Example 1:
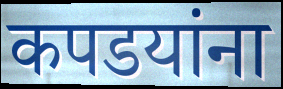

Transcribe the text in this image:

कपडयांना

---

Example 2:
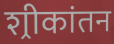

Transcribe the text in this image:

श्रीकांतन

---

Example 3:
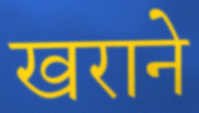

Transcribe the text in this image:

खराने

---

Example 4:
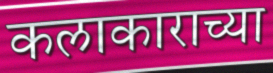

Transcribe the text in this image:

कलाकाराच्या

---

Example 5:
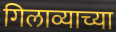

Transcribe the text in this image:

गिलाव्याच्या